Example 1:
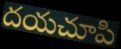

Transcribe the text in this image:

దయచూపి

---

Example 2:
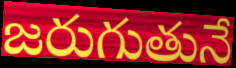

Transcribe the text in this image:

జరుగుతునే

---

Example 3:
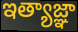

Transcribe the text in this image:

ఇత్యాజ్ఞా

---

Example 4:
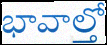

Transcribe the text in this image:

భావాల్తో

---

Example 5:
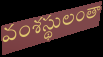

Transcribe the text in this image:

వంశస్థులంతా